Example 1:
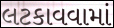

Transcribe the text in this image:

લટકાવવામાં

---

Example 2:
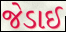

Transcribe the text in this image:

જેડાઈ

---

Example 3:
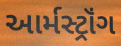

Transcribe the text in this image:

આર્મસ્ટ્રૉંગ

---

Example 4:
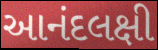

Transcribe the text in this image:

આનંદલક્ષી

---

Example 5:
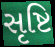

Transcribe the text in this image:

સૃષ્ટિ